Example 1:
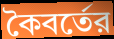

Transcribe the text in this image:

কৈবর্তের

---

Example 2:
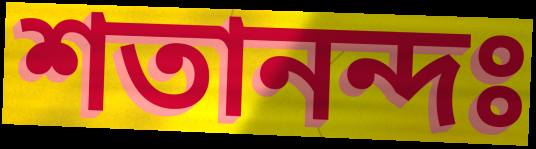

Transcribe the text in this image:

শতানন্দঃ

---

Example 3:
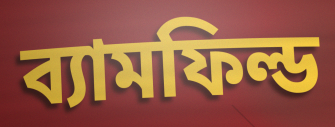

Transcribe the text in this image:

ব্যামফিল্ড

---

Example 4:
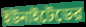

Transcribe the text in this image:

ইউনাইটেডের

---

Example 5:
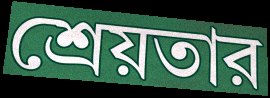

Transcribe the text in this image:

শ্রেয়তার